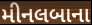
મીનલબાના